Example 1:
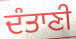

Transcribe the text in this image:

ਦੰਤਾਣੀ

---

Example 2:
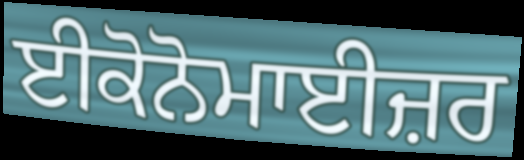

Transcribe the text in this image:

ਈਕੋਨੋਮਾਈਜ਼ਰ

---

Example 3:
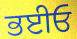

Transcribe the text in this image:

ਭਈਓ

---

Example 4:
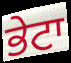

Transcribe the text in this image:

ਭੇਟਾ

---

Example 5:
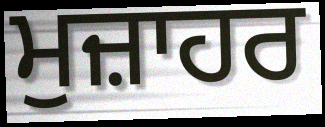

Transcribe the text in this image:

ਮੁਜ਼ਾਹਰ